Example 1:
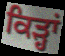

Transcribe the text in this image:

ਕਿੜ੍ਹਾਂ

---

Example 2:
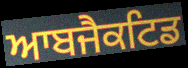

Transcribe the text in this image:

ਆਬਜੈਕਟਿਡ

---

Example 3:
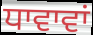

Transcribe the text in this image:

ਧਾਵਾਵਾਂ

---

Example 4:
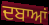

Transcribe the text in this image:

ਦਬਾਆਂ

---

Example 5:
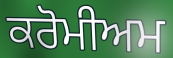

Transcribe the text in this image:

ਕਰੋਮੀਅਮ